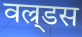
वल्र्डस